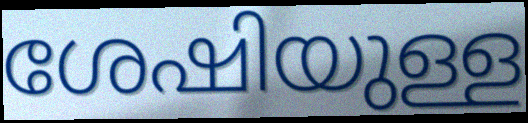
ശേഷിയുള്ള